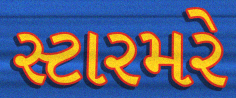
સ્ટારમરે